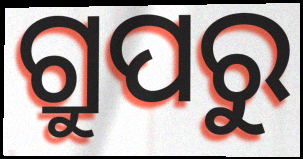
ଗ୍ରୁପରୁ